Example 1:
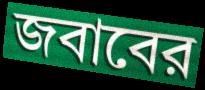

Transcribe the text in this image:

জবাবের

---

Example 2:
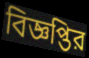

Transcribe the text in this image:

বিজ্ঞপ্তির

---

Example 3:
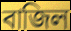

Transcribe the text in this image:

বাজিল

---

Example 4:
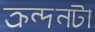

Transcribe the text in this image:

ক্রন্দনটা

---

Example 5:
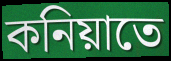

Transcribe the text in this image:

কনিয়াতে